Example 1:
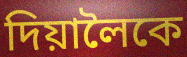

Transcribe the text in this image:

দিয়ালৈকে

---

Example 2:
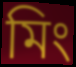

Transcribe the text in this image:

মিং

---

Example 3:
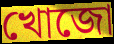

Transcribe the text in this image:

খোজো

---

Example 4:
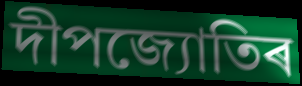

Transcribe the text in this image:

দীপজ্যোতিৰ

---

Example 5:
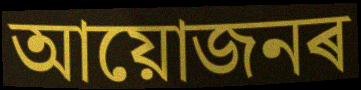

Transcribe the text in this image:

আয়োজনৰ